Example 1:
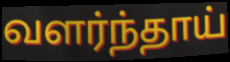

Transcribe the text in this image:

வளர்ந்தாய்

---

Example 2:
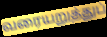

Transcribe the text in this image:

வரையறுத்துப்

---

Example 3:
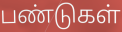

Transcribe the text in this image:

பண்டுகள்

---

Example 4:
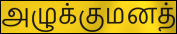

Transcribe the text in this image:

அழுக்குமனத்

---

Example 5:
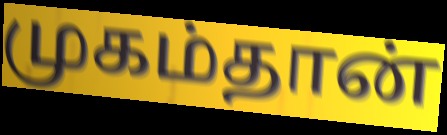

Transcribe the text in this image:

முகம்தான்